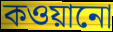
কওয়ানো